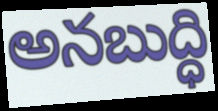
అనబుద్ధి